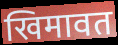
खिमावत